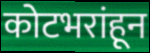
कोटभरांहून